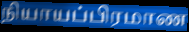
நியாயப்பிரமாண